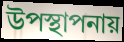
উপস্থাপনায়